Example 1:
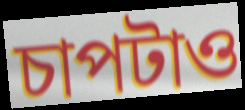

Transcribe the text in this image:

চাপটাও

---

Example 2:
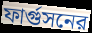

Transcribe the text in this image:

ফার্গুসনের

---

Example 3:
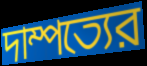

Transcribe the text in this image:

দাম্পত্যের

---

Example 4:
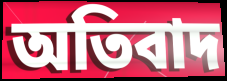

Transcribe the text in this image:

অতিবাদ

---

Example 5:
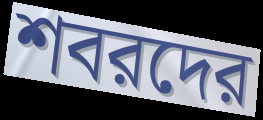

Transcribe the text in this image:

শবরদের